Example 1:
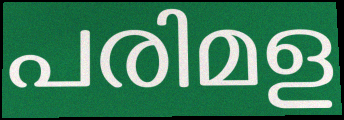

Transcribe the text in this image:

പരിമള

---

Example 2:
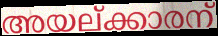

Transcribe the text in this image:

അയല്ക്കാരന്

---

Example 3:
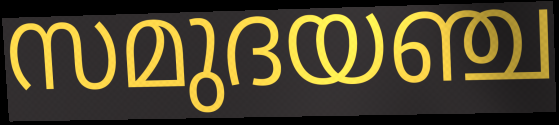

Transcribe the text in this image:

സമുദയഞ്ച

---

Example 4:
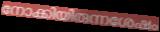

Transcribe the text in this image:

നോക്കിയിരുന്നശേഷം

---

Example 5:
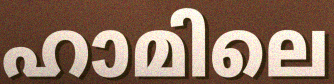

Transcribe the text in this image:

ഹാമിലെ